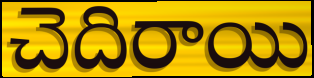
చెదిరాయి